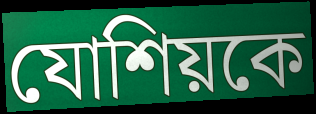
যোশিয়কে